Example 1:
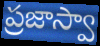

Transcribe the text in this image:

ప్రజాస్వా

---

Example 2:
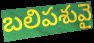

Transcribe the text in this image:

బలిపశువై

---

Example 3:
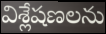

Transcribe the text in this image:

విశ్లేషణలను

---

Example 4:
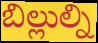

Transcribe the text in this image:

బిల్లుల్ని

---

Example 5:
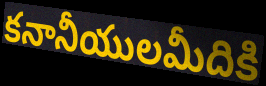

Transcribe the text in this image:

కనానీయులమీదికి